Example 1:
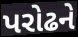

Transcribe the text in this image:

પરોઢને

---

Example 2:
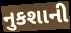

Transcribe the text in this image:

નુકશાની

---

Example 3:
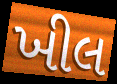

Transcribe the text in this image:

ખીલ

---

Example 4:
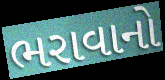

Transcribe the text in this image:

ભરાવાનો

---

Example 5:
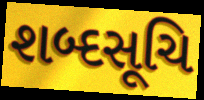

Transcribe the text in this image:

શબ્દસૂચિ